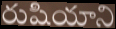
రుషియాని